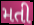
મતી